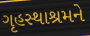
ગૃહસ્થાશ્રમને